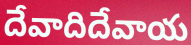
దేవాదిదేవాయ